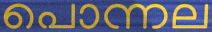
പൊന്നല